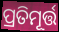
ପ୍ରତିମୂର୍ତ୍ତ